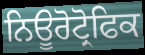
ਨਿਊਰੋਟ੍ਰੋਫਿਕ